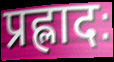
प्रह्लादः